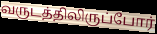
வருடத்திலிருப்போர்